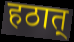
हठात्